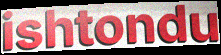
ishtondu